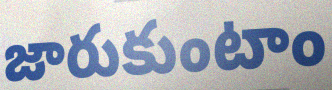
జారుకుంటాం